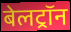
बेलट्रॉन